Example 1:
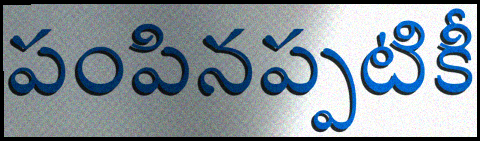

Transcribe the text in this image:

పంపినప్పటికీ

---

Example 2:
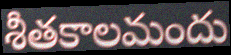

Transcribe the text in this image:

శీతకాలమందు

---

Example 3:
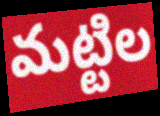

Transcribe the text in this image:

మట్టిల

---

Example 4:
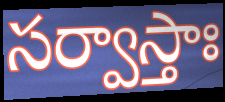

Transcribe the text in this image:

సర్వాస్తాః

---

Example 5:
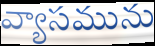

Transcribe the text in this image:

వ్యాసమును